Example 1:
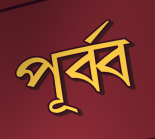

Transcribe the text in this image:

পূৰ্ব্ব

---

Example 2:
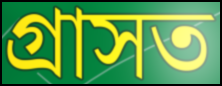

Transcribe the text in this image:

গ্ৰাসত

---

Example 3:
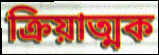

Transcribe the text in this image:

ক্ৰিয়াত্মক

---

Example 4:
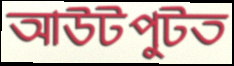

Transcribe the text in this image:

আউটপুটত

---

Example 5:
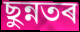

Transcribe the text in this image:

ছুন্নতৰ